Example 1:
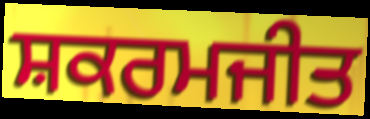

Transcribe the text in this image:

ਸ਼ਕਰਮਜੀਤ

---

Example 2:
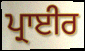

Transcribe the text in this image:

ਪ੍ਰਾਈਰ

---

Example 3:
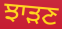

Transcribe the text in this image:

ਝਾੜਣ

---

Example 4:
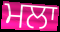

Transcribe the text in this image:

ਮਲਾ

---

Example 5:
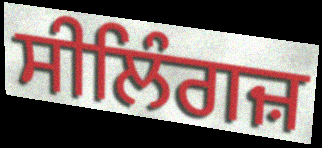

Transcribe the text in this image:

ਸੀਲਿੰਗਜ਼